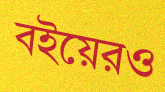
বইয়েরও